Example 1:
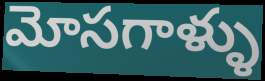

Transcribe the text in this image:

మోసగాళ్ళు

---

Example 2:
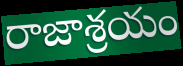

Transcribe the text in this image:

రాజాశ్రయం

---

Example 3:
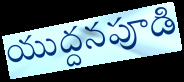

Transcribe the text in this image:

యుద్దనపూడి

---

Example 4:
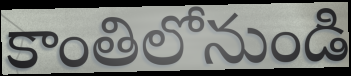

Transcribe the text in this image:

కాంతిలోనుండి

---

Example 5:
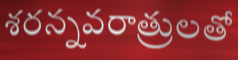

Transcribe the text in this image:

శరన్నవరాత్రులతో